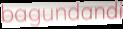
bagundandi